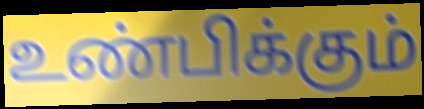
உண்பிக்கும்